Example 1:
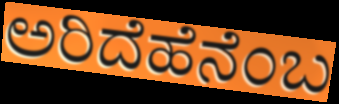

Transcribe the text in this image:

ಅರಿದೆಹೆನೆಂಬ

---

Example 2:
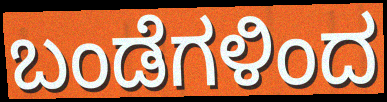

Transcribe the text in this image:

ಬಂಡೆಗಳಿಂದ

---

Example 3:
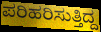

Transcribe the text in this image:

ಪರಿಹರಿಸುತ್ತಿದ್ದ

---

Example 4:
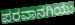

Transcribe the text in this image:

ಪರವಾನಗಿಯು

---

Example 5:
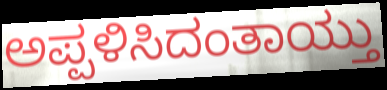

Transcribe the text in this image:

ಅಪ್ಪಳಿಸಿದಂತಾಯ್ತು